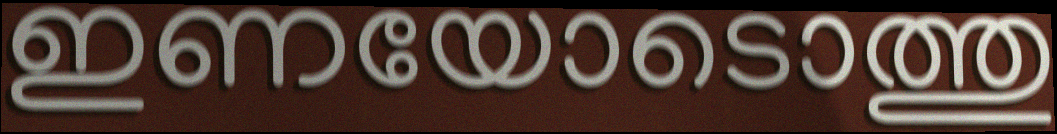
ഇണയോടൊത്തു